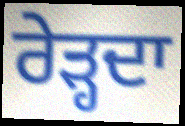
ਰੇੜ੍ਹਦਾ